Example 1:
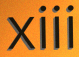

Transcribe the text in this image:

xiii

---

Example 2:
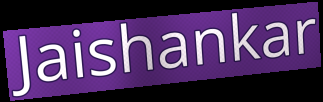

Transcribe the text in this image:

Jaishankar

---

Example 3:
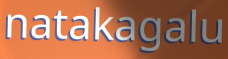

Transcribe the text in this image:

natakagalu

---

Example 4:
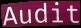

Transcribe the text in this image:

Audit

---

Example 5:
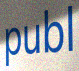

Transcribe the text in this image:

publ